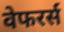
वेफरर्स